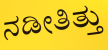
ನಡೀತಿತ್ತು